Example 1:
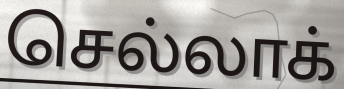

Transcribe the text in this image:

செல்லாக்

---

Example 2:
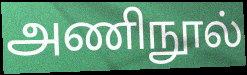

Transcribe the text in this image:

அணிநூல்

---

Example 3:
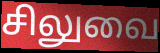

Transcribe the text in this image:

சிலுவை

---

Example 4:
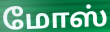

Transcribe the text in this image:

மோஸ்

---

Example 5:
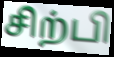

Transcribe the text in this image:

சிற்பி